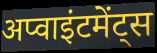
अप्वाइंटमेंट्स